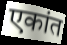
एकांत